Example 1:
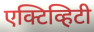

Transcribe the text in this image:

एक्टिव्हिटी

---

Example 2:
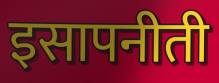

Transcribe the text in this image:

इसापनीती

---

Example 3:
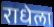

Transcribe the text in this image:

राधेला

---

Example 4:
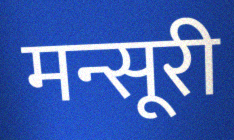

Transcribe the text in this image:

मन्सूरी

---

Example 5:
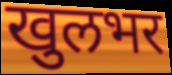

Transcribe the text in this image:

खुलभर